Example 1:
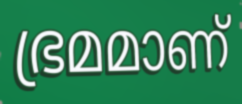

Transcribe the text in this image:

ഭ്രമമാണ്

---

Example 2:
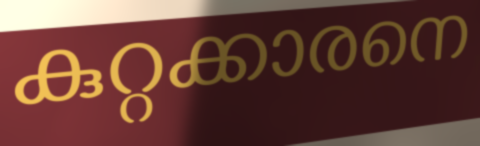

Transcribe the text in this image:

കുറ്റക്കാരനെ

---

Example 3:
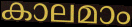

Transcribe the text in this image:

കാലമാം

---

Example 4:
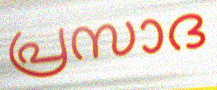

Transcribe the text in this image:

പ്രസാദ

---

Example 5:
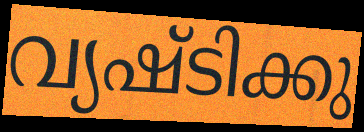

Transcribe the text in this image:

വ്യഷ്ടിക്കു